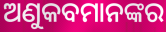
ଅଣୁକବମାନଙ୍କର